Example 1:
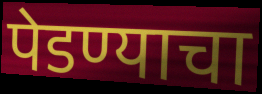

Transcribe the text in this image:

पेडण्याचा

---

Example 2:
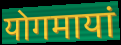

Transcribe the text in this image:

योगमायां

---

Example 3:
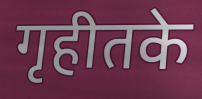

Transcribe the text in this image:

गृहीतके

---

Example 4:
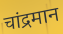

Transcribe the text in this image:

चांद्रमान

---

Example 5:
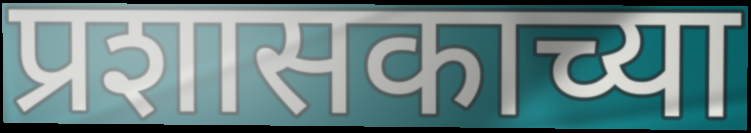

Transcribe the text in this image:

प्रशासकाच्या